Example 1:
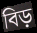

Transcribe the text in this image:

বিড়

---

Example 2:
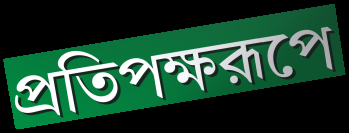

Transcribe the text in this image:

প্রতিপক্ষরূপে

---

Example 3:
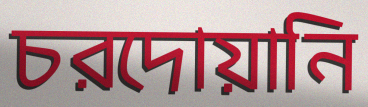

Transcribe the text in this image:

চরদোয়ানি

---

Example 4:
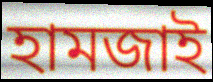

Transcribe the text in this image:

হামজাই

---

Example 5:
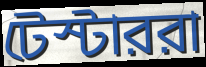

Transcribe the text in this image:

টেস্টাররা